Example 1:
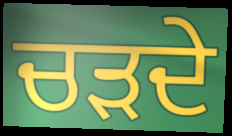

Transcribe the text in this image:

ਚੜਦੇ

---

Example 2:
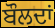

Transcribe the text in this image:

ਬੌਲਦਾਂ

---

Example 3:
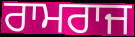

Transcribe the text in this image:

ਰਾਮਰਾਜ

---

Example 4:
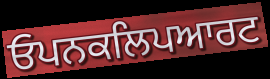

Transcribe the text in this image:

ਓਪਨਕਲਿਪਆਰਟ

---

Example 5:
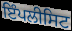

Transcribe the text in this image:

ਇੰਪਲੀਸਿਟ